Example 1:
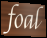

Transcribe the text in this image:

foal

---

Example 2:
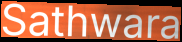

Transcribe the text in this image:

Sathwara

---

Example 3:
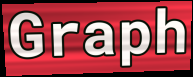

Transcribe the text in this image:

Graph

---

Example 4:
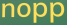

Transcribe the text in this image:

nopp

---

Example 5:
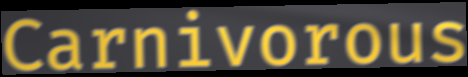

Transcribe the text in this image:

Carnivorous